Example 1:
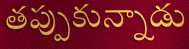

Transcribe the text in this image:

తప్పుకున్నాడు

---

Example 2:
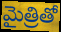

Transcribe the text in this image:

మైత్రితో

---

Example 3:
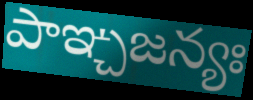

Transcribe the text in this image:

పాఞ్చజన్యః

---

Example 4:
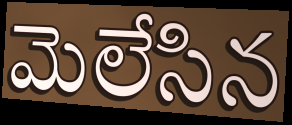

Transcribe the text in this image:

మెలేసిన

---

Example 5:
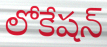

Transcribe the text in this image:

లోకేషన్